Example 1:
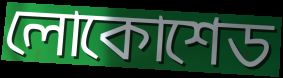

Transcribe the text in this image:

লোকোশেড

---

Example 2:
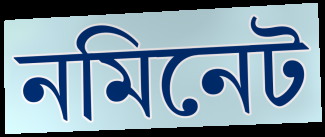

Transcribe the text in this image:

নমিনেট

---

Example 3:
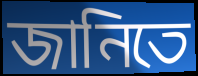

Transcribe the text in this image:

জানিতে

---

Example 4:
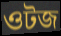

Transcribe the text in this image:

ওটজ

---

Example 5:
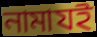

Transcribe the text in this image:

নামাযই